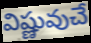
విష్ణువుచే